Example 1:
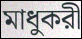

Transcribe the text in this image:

মাধুকরী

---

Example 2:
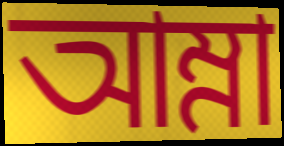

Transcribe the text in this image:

আম্না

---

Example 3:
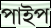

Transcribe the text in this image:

পাইপ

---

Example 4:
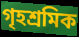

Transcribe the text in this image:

গৃহশ্রমিক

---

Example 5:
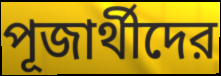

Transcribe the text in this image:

পূজার্থীদের